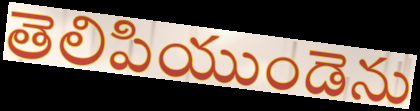
తెలిపియుండెను